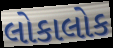
લોકાલોક